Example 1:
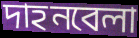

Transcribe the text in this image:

দাহনবেলা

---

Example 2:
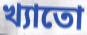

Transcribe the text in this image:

খ্যাতো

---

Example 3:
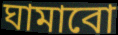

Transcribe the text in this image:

ঘামাবো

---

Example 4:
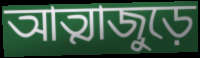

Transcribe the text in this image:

আত্মাজুড়ে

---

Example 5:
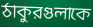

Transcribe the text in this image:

ঠাকুরগুলাকে